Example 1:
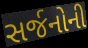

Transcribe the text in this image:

સર્જનોની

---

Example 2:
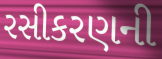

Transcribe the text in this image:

રસીકરણની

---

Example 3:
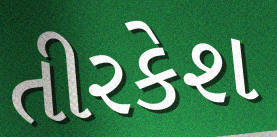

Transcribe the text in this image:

તીરકેશ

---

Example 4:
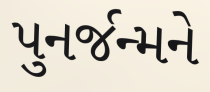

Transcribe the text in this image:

પુનર્જન્મને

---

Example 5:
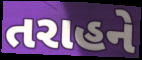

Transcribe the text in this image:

તરાહને